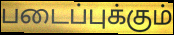
படைப்புக்கும்